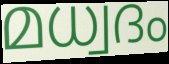
മധ്വദം